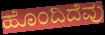
ಹೊಂದಿದೆವು